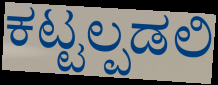
ಕಟ್ಟಲ್ಪಡಲಿ